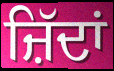
ਜ਼ਿੱਦਾਂ